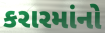
કરારમાંનો